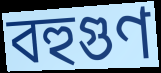
বহুগুণ